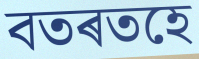
বতৰতহে